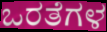
ಒರತೆಗಳ